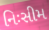
નિઃસીમ